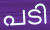
പടി